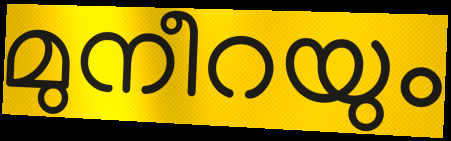
മുനീറയും